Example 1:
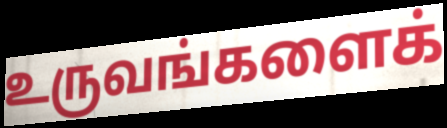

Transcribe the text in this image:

உருவங்களைக்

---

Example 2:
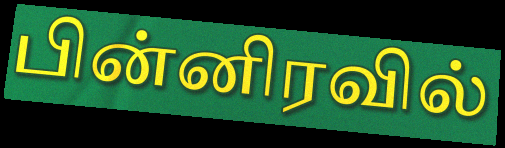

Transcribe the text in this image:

பின்னிரவில்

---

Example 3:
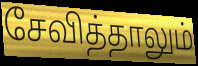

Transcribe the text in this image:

சேவித்தாலும்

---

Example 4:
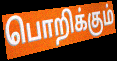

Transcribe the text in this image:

பொறிக்கும்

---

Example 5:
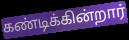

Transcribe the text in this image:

கண்டிக்கின்றார்